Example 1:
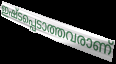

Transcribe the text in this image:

ഇഷ്ടപ്പെടാത്തവരാണ്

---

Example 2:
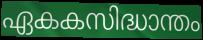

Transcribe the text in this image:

ഏകകസിദ്ധാന്തം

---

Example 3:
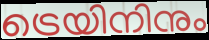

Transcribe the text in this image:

ട്രെയിനിനും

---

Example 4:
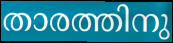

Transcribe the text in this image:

താരത്തിനു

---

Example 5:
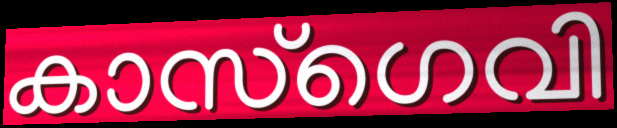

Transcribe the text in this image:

കാസ്ഗെവി